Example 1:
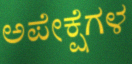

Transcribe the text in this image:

ಅಪೇಕ್ಷೆಗಳ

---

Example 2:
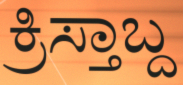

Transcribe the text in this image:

ಕ್ರಿಸ್ತಾಬ್ದ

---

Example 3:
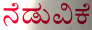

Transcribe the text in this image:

ನೆಡುವಿಕೆ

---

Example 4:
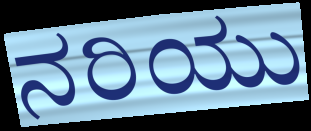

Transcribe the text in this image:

ನರಿಯು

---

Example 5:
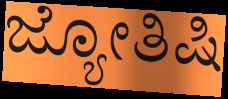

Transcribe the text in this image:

ಜ್ಯೋತಿಷಿ